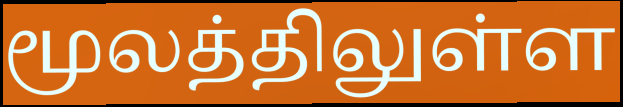
மூலத்திலுள்ள